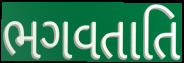
ભગવતાતિ